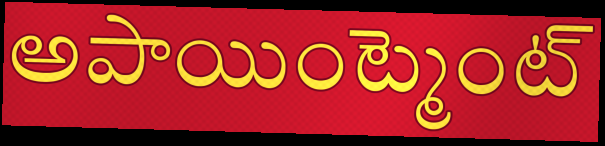
అపాయింట్మెంట్